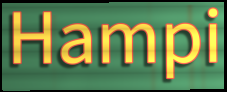
Hampi